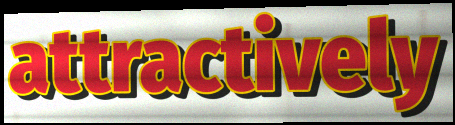
attractively